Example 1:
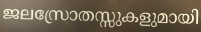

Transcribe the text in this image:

ജലസ്രോതസ്സുകളുമായി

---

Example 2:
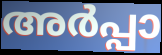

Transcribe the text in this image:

അർപ്പാ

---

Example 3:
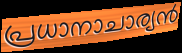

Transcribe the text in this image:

പ്രധാനാചാര്യൻ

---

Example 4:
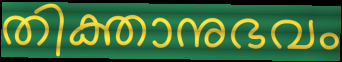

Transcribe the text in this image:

തിക്താനുഭവം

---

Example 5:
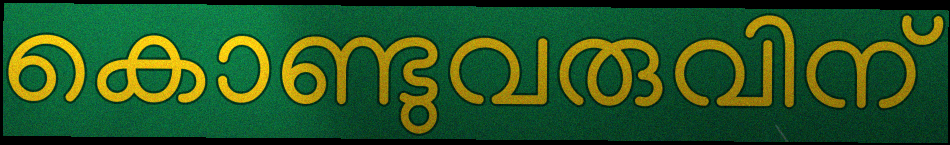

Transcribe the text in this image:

കൊണ്ടുവരുവിന്